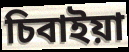
চিবাইয়া